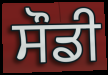
ਸੌਡੀ